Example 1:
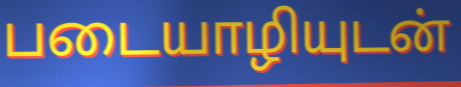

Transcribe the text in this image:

படையாழியுடன்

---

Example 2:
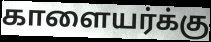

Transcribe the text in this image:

காளையர்க்கு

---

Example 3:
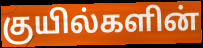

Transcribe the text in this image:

குயில்களின்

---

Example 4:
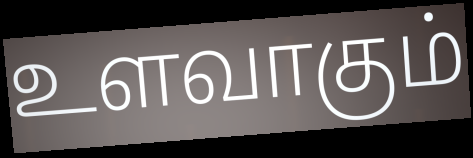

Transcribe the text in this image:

உளவாகும்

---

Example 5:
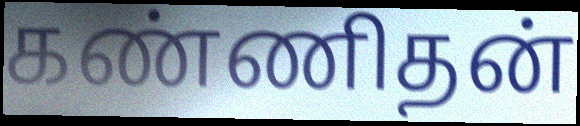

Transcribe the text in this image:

கண்ணிதன்